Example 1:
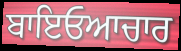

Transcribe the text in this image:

ਬਾਇਓਆਚਾਰ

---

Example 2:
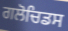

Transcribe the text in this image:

ਗਲੋਚਿਡਸ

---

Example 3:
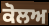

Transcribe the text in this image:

ਕੋਲਅ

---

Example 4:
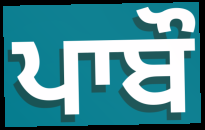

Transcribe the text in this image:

ਪਾਬੌ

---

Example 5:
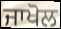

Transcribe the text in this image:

ਜਾਖੋਲ